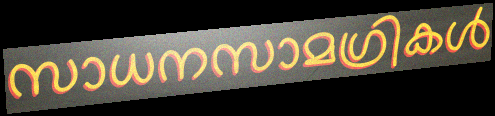
സാധനസാമഗ്രികൾ